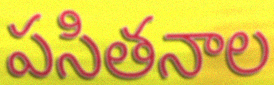
పసితనాల